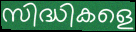
സിദ്ധികളെ